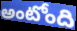
అంటోంది